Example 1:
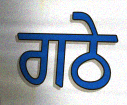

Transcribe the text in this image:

ਗਠੇ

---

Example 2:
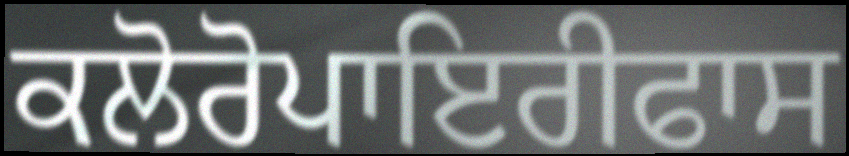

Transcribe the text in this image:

ਕਲੋਰੋਪਾਇਰੀਫਾਸ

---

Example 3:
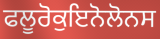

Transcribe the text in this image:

ਫਲੂਰੋਕੁਇਨੋਲੋਨਸ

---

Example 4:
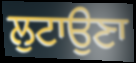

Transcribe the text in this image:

ਲੁਟਾਉਣਾ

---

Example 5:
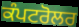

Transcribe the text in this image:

ਕੰਪਟਰੋਲਰ